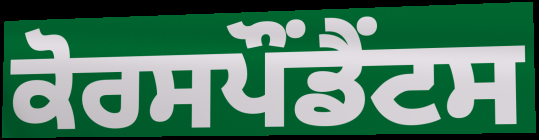
ਕੋਰਸਪੌਂਡੈਂਟਸ